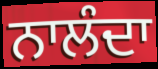
ਨਾਲੰਦਾ